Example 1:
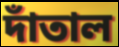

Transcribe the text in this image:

দাঁতাল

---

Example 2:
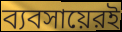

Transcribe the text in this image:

ব্যবসায়েরই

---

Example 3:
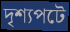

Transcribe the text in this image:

দৃশ্যপটে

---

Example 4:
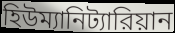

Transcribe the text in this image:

হিউম্যানিট্যারিয়ান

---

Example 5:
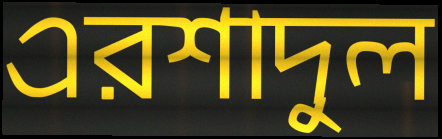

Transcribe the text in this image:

এরশাদুল